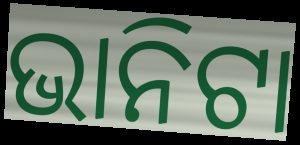
ଭାନିଟା